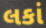
લકાં